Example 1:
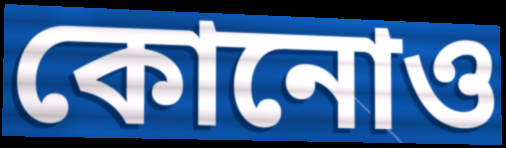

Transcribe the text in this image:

কোনোও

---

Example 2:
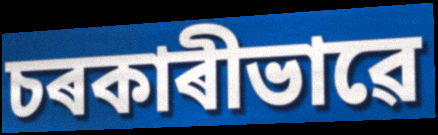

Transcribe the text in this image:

চৰকাৰীভাৱে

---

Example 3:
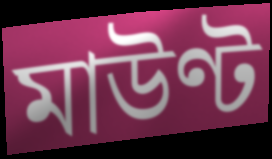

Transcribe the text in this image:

মাউণ্ট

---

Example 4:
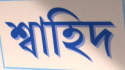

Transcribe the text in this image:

শ্বাহিদ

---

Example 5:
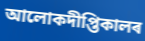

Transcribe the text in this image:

আলোকদীপ্তিকালৰ